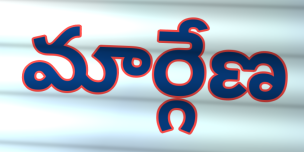
మార్గేణ